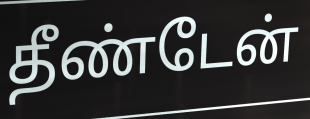
தீண்டேன்